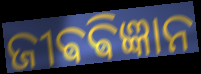
ଜୀଵଵିଜ୍ଞାନ